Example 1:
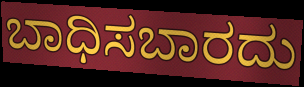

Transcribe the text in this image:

ಬಾಧಿಸಬಾರದು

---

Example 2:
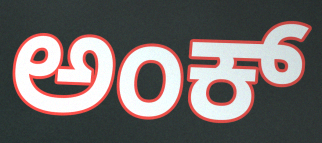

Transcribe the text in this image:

ಅಂಕ್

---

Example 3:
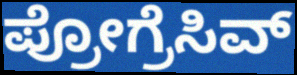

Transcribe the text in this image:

ಪ್ರೋಗ್ರೆಸಿವ್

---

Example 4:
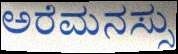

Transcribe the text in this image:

ಅರೆಮನಸ್ಸು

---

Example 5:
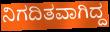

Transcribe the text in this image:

ನಿಗದಿತವಾಗಿದ್ದ